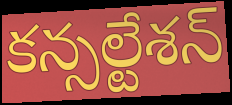
కన్సల్టేశన్